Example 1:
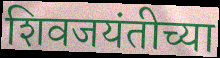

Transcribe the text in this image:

शिवजयंतीच्या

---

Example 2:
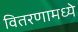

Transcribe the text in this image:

वितरणामध्ये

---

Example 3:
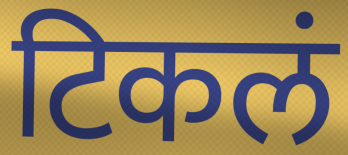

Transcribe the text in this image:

टिकलं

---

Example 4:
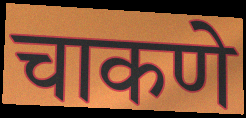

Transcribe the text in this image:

चाकणे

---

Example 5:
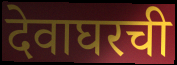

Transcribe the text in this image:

देवाघरची